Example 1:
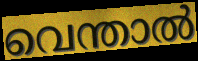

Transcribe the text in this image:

വെന്താൽ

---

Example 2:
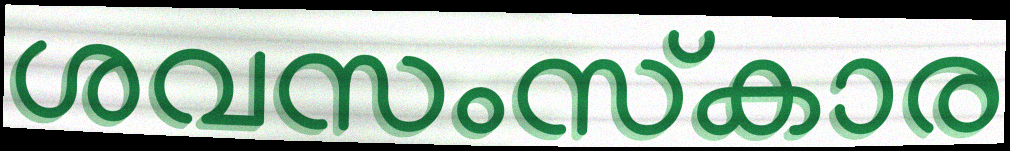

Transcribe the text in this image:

ശവസംസ്‌കാര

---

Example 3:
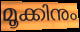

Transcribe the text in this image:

മൂക്കിനും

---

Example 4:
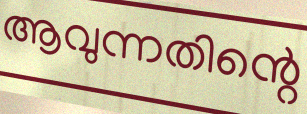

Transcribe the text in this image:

ആവുന്നതിന്റെ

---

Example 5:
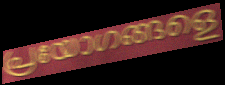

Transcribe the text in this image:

പ്രയോഗങ്ങളെ